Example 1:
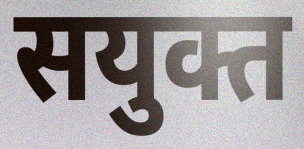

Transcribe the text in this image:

सयुक्त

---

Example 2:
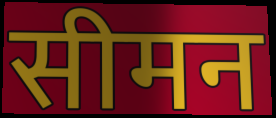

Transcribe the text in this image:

सीमन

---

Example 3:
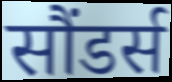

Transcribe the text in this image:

सौंडर्स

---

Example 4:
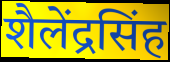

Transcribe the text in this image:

शैलेंद्रसिंह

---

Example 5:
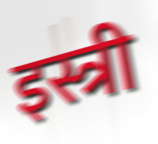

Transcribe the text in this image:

इस्त्री